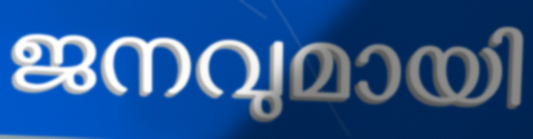
ജനവുമായി